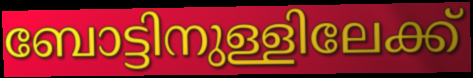
ബോട്ടിനുള്ളിലേക്ക്